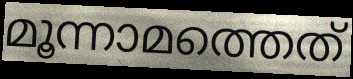
മൂന്നാമത്തെത്